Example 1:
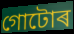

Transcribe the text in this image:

গোটোৰ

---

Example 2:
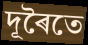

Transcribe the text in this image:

দূৰৈতে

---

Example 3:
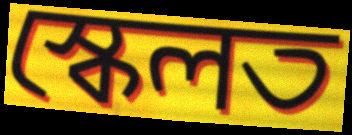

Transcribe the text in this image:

স্কেলত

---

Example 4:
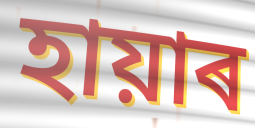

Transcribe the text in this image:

হায়াৰ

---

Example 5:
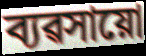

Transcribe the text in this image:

ব্যৱসায়ো